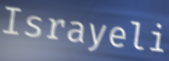
Israyeli